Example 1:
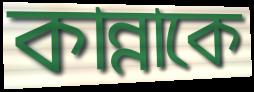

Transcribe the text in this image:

কান্নাকে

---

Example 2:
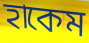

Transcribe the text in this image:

হাকেম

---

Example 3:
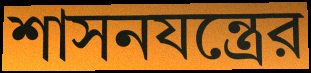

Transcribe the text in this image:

শাসনযন্ত্রের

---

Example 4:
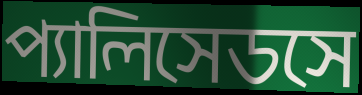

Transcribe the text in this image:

প্যালিসেডসে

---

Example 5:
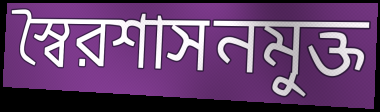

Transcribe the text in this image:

স্বৈরশাসনমুক্ত